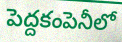
పెద్దకంపెనీలో